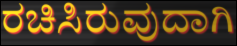
ರಚಿಸಿರುವುದಾಗಿ